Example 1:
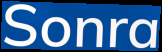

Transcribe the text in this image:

Sonra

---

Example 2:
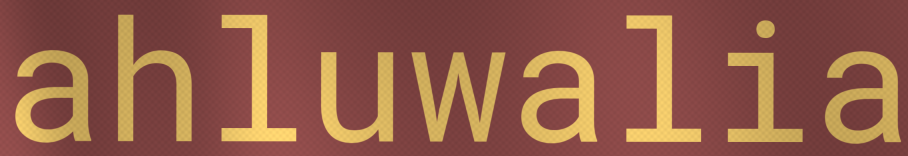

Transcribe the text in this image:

ahluwalia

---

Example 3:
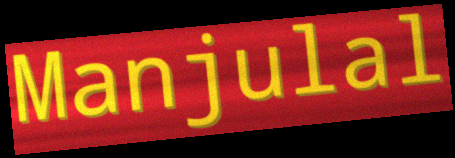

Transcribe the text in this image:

Manjulal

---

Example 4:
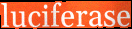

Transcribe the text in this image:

luciferase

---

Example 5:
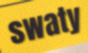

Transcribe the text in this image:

swaty